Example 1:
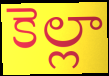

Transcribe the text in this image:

కెల్లా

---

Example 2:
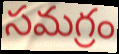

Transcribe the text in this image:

సమగ్రం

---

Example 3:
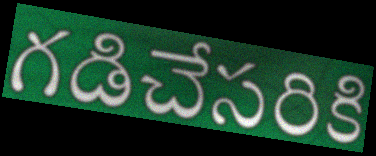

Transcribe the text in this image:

గడిచేసరికి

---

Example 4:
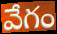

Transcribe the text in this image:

వేగం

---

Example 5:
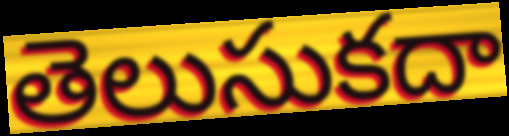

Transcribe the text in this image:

తెలుసుకదా